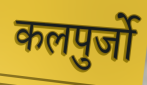
कलपुर्जो